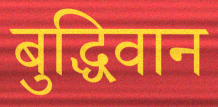
बुद्धिवान